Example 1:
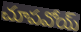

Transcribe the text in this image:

చూపవోయ్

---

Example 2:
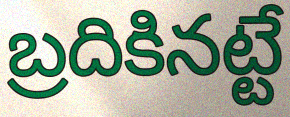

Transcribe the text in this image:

బ్రదికినట్టే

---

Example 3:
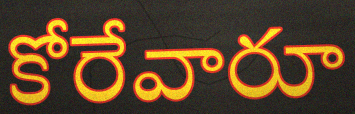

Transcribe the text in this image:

కోరేవారూ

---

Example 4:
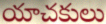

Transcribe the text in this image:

యాచకులు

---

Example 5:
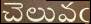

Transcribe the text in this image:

చెలువఁ